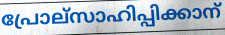
പ്രോല്സാഹിപ്പിക്കാന്